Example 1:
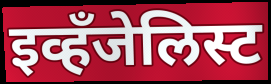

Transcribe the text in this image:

इव्हँजेलिस्ट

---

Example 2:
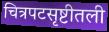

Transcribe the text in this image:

चित्रपटसृष्टीतली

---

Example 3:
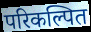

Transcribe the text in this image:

परिकल्पित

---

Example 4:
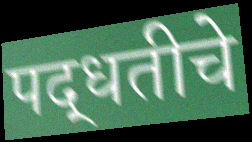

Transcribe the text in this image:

पद्धतीचे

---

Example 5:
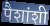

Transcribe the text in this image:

पैशांशी